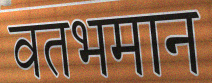
वतभमान